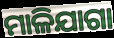
ମାଳିଯାଗା